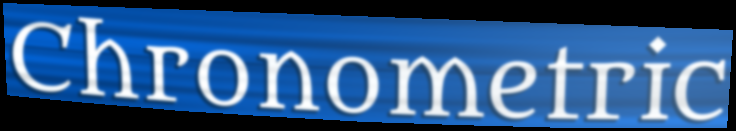
Chronometric